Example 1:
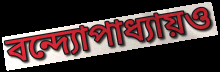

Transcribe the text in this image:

বন্দ্যোপাধ্যায়ও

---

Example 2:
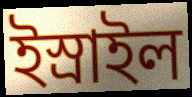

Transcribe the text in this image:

ইস্রাইল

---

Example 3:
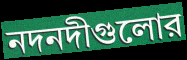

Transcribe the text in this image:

নদনদীগুলোর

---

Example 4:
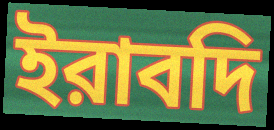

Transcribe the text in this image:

ইরাবদি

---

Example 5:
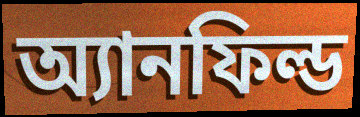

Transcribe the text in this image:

অ্যানফিল্ড